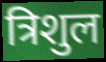
त्रिशुल